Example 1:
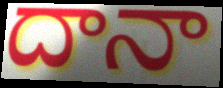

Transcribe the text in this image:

దానా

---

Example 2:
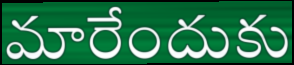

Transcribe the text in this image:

మారేందుకు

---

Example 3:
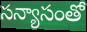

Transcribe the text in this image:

సన్యాసంతో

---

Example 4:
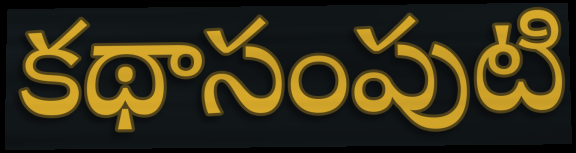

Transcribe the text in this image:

కథాసంపుటి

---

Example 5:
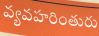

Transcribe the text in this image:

వ్యవహరింతురు